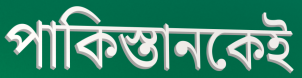
পাকিস্তানকেই